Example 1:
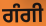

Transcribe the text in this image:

ਗੰਗੀ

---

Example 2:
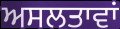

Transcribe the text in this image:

ਅਸਲਤਾਵਾਂ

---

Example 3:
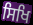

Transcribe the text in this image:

ਸਿਖਿ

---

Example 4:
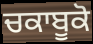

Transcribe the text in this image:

ਚਕਾਬੂਕੋ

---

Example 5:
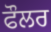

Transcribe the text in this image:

ਫੌਲਰ